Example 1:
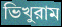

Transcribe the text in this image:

ভিখুরাম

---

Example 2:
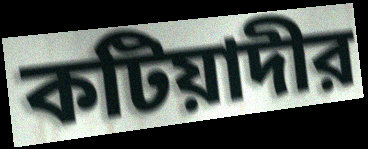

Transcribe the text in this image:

কটিয়াদীর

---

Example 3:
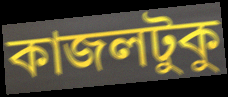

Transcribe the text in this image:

কাজলটুকু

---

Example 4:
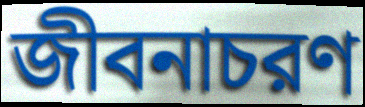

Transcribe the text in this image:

জীবনাচরণ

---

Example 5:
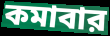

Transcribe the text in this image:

কমাবার